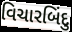
વિચારબિંદુ